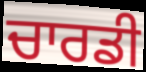
ਚਾਰਡੀ